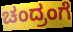
ಚಂದ್ರಂಗೆ